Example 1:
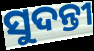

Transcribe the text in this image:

ସୁଦନ୍ତୀ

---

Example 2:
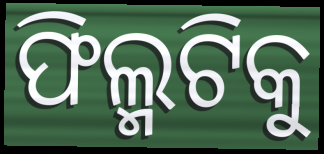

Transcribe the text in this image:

ଫିଲ୍ମଟିକୁ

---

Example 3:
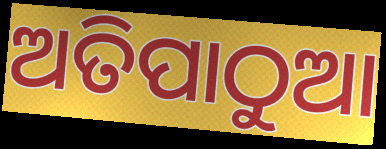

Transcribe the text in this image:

ଅତିପାଠୁଆ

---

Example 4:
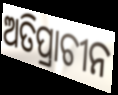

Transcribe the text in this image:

ଅତିପ୍ରାଚୀନ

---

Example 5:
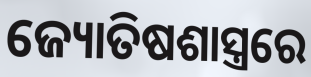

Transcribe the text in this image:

ଜ୍ୟୋତିଷଶାସ୍ତ୍ରରେ